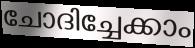
ചോദിച്ചേക്കാം